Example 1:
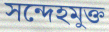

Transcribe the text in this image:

সন্দেহমুক্ত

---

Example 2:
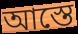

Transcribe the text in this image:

আস্তে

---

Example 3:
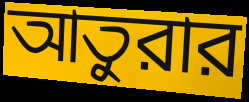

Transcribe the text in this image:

আতুরার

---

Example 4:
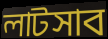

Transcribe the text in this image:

লাটসাব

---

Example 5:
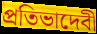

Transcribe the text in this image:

প্রতিভাদেবী